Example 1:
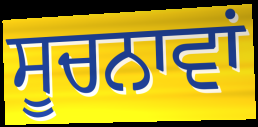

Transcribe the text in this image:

ਸੂਚਨਾਵਾਂ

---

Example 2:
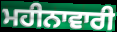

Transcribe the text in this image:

ਮਹੀਨਾਵਾਰੀ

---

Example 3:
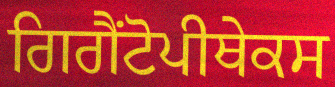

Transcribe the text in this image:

ਗਿਗੈਂਟੋਪੀਥੇਕਸ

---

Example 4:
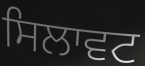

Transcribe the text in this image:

ਸਿਲਾਵਟ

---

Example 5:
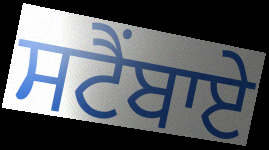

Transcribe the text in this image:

ਸਟੈਂਬਾਏ